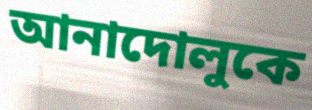
আনাদোলুকে